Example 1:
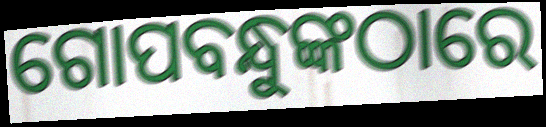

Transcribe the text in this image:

ଗୋପବନ୍ଧୁଙ୍କଠାରେ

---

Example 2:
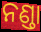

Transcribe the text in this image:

ନଣ୍ଡା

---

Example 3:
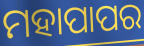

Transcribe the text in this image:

ମହାପାପର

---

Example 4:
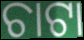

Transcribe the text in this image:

ଚାଟା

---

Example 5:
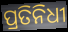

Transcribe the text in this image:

ପ୍ରତିନିଧୀ